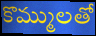
కొమ్ములతో